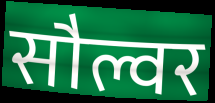
सौल्वर